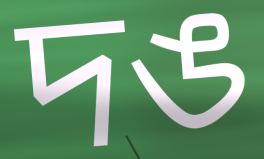
দঙ